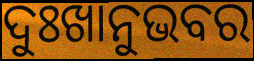
ଦୁଃଖାନୁଭବର